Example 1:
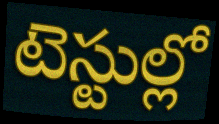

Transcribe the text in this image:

టెస్టుల్లో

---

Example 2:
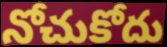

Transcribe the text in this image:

నోచుకోదు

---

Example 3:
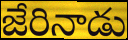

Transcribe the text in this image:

జేరినాడు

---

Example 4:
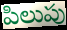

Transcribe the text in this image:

పిలుపు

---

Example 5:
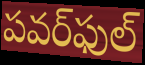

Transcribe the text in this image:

పవర్‌ఫుల్